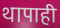
थापाही